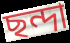
ছন্দা